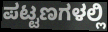
ಪಟ್ಟಣಗಳಲ್ಲಿ